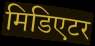
मिडिएटर